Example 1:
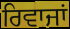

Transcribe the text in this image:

ਰਿਵਾਜਾਂ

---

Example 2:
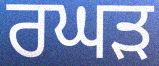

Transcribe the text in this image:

ਰਘੜ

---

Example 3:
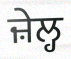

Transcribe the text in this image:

ਜ਼ੇਲ੍ਹ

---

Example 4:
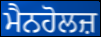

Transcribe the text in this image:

ਮੈਨਹੋਲਜ਼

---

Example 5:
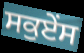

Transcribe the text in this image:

ਸਕੁਏਂਸ